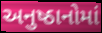
અનુષ્ઠાનોમાં